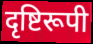
दृष्टिरूपी